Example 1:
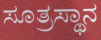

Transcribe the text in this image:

ಸೂತ್ರಸ್ಥಾನ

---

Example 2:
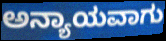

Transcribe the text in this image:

ಅನ್ಯಾಯವಾಗು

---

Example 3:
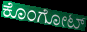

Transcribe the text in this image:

ಕೊಂಗೋಟ್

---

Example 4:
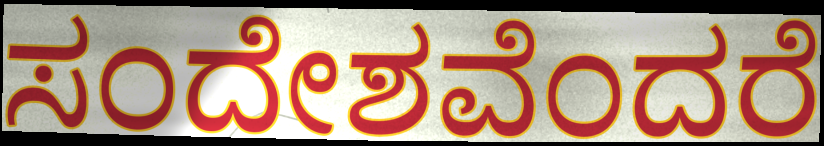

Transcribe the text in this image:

ಸಂದೇಶವೆಂದರೆ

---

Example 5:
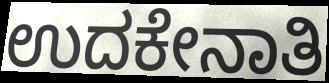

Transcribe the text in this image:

ಉದಕೇನಾತಿ